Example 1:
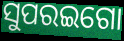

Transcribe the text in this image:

ସୁପରଇଗୋ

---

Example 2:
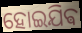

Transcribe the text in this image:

ହୋଇଯିଵ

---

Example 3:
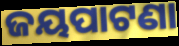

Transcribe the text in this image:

ଜୟପାଟଣା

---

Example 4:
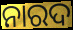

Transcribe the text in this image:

ନାରଦ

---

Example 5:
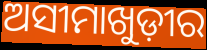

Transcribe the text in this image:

ଅସୀମାଖୁଡ଼ୀର